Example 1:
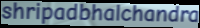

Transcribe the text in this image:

shripadbhalchandra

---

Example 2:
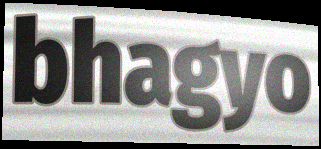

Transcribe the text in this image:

bhagyo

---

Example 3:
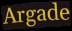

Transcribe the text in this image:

Argade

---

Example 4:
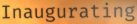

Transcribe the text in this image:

Inaugurating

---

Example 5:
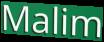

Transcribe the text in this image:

Malim